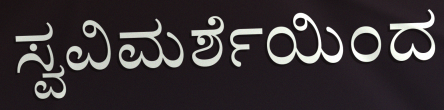
ಸ್ವವಿಮರ್ಶೆಯಿಂದ